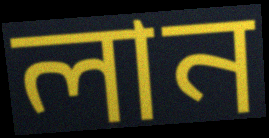
লান